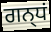
ਗਨ੍ਧਂ